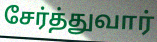
சேர்த்துவார்